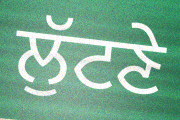
ਲੁੱਟਣੇ